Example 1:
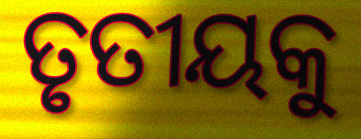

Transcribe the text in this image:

ତୃତୀୟକୁ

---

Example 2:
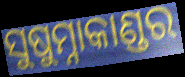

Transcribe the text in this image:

ସୁଷୁମ୍ନାକାଣ୍ଡର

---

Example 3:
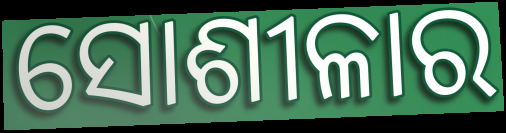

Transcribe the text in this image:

ସୋଶୀଳାର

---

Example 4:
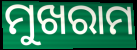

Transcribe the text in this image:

ମୁଖରାମ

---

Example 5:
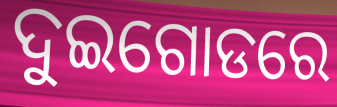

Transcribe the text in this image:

ଦୁଇଗୋଡରେ